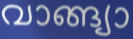
വാങ്ങ്യാ